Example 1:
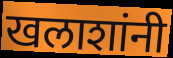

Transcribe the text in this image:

खलाशांनी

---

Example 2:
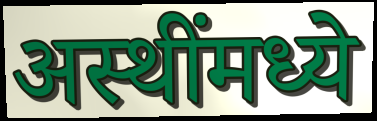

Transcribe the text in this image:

अस्थींमध्ये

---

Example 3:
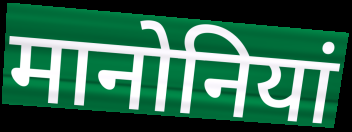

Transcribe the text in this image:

मानोनियां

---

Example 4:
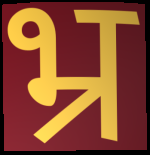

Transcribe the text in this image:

भ्र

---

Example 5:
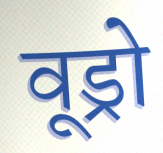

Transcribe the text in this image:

वूड्रो